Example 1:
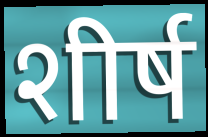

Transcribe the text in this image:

शीर्ष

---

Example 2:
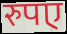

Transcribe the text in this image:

रुपए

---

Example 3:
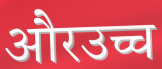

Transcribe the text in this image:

औरउच्च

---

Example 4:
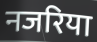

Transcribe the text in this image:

नजरिया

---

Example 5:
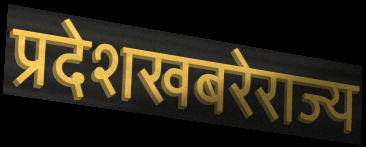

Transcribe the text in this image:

प्रदेशखबरेराज्य